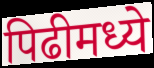
पिढीमध्ये